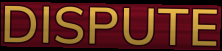
DISPUTE